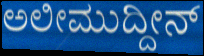
ಅಲೀಮುದ್ದೀನ್